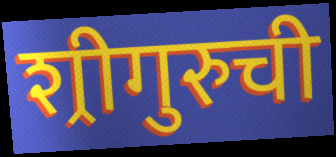
श्रीगुरुची